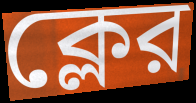
ক্লের